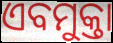
ଏବମୁକ୍ତା